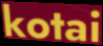
kotai